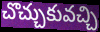
చొచ్చుకువచ్చి